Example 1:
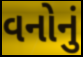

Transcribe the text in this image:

વનોનું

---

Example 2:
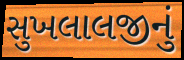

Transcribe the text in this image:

સુખલાલજીનું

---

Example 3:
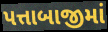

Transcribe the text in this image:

પત્તાબાજીમાં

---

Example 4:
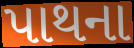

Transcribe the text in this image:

પાથના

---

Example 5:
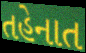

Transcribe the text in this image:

તહેનાત